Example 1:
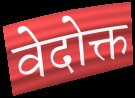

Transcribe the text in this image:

वेदोक्त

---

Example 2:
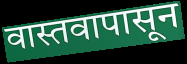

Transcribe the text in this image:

वास्तवापासून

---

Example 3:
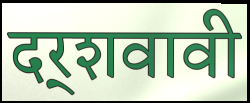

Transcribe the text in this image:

दर्शवावी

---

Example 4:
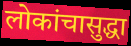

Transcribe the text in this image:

लोकांचासुद्धा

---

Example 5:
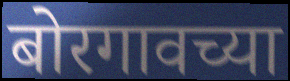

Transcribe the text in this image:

बोरगावच्या